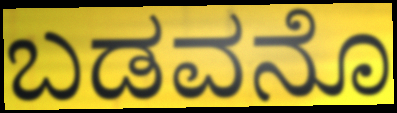
ಬಡವನೊ